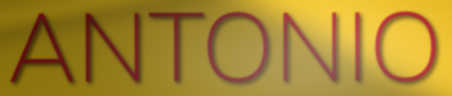
ANTONIO